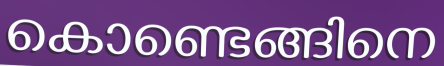
കൊണ്ടെങ്ങിനെ